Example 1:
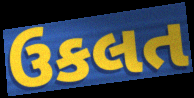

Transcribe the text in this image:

ઉકલત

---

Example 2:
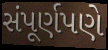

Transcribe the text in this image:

સંપૂર્ણપણે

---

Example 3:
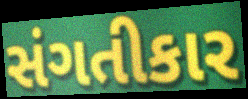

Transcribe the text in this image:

સંગતીકાર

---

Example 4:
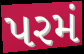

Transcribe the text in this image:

પરમં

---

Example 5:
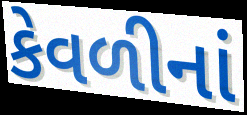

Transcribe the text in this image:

કેવળીનાં